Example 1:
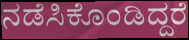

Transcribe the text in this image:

ನಡೆಸಿಕೊಂಡಿದ್ದರೆ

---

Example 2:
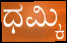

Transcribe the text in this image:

ಧಮ್ಕಿ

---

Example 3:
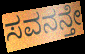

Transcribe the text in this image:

ಸವನನ್ತೇ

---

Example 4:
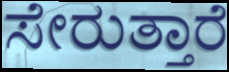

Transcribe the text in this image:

ಸೇರುತ್ತಾರೆ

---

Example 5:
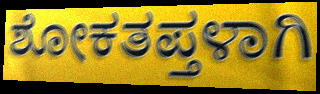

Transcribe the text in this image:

ಶೋಕತಪ್ತಳಾಗಿ